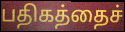
பதிகத்தைச்